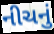
નીચનું